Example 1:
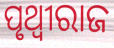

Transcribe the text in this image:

ପୃଥ୍ୱୀରାଜ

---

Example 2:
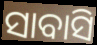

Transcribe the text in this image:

ସାବାସି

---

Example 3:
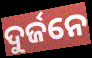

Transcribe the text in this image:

ଦୁର୍ଜନେ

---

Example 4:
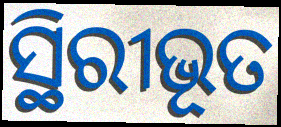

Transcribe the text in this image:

ସ୍ଥିରୀଭୂତ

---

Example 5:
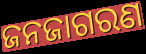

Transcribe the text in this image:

ଜନଜାଗରଣ